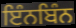
ਇੰਨਬਿੰਨ